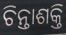
ଚିନ୍ତାଶକ୍ତି